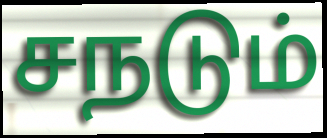
சநடும்